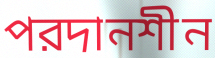
পরদানশীন